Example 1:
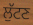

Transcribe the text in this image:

ਲੁੱਟਣ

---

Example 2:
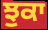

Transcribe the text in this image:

ਝੁਕਾ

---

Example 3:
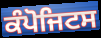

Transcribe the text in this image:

ਕੰਪੋਜਿਟਸ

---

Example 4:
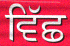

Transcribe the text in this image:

ਵਿੱਛ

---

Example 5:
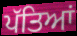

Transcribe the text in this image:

ਪੱਤਿਆਂ